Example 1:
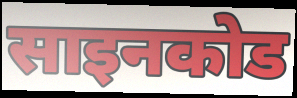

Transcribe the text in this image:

साइनकोड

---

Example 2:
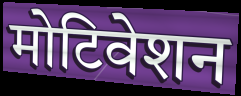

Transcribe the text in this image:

मोटिवेशन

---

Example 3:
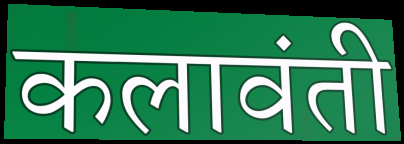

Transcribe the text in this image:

कलावंती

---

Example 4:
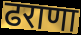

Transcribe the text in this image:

ढराणा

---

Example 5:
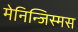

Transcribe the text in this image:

मेनिन्जिस्मस